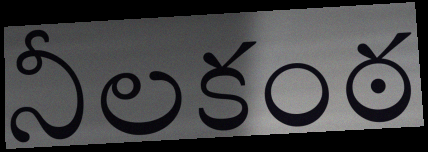
నీలకంఠ